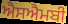
ਐਸਐਮਬੀ